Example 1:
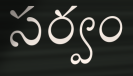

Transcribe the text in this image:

సర్వం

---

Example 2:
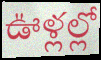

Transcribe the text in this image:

ఊళ్లల్లో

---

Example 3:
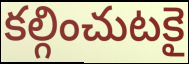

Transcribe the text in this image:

కల్గించుటకై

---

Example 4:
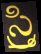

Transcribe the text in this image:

స్ర్తి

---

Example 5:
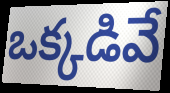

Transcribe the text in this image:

ఒక్కడివే